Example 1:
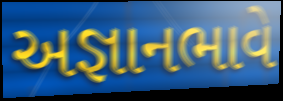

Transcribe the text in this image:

અજ્ઞાનભાવે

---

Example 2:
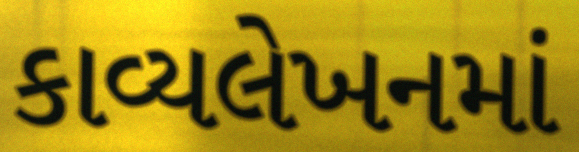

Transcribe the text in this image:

કાવ્યલેખનમાં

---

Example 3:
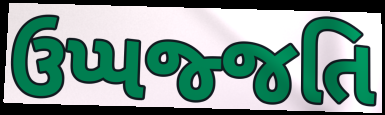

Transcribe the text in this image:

ઉપ્પજ્જતિ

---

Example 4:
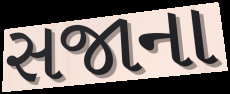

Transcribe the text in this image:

સજાના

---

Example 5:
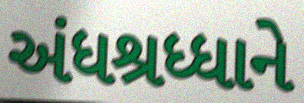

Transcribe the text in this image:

અંધશ્રધ્ધાને